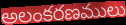
అలంకరణములు